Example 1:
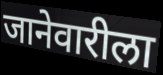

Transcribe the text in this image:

जानेवारीला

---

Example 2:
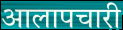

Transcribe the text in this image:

आलापचारी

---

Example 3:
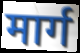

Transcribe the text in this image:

मार्ग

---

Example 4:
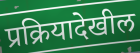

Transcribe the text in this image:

प्रक्रियादेखील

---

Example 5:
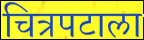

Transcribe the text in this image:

चित्रपटाला